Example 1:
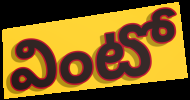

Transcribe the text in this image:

వింటో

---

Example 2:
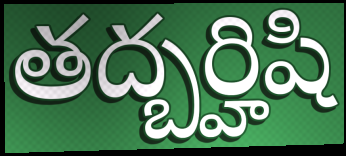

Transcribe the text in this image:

తద్బర్హిషి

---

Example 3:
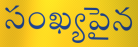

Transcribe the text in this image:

సంఖ్యపైన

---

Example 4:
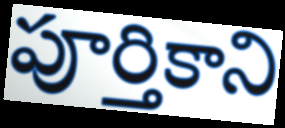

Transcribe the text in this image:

పూర్తికాని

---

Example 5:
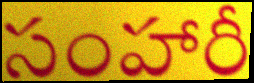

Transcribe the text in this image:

సంహారీ